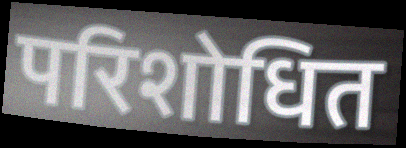
परिशोधित